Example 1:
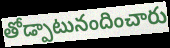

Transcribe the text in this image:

తోడ్పాటునందించారు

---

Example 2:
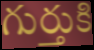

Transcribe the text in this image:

గుర్తుకి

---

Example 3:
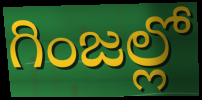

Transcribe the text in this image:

గింజల్లో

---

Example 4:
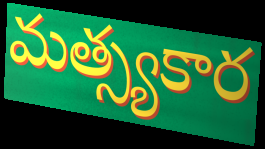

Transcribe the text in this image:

మత్స్యకార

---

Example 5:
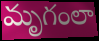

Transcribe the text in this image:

మృగంలా